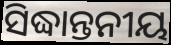
ସିଦ୍ଧାନ୍ତନୀୟ